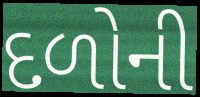
દળોની